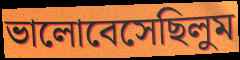
ভালোবেসেছিলুম